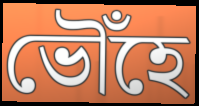
ভৌঁহে